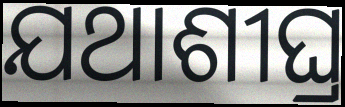
ଯଥାଶୀଘ୍ର